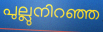
പുല്ലുനിറഞ്ഞ